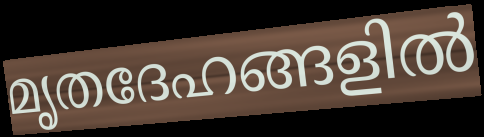
മൃതദേഹങ്ങളിൽ